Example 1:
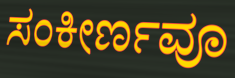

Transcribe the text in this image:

ಸಂಕೀರ್ಣವೂ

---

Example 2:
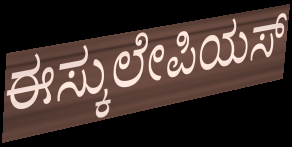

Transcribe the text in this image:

ಈಸ್ಕುಲೇಪಿಯಸ್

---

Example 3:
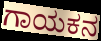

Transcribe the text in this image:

ಗಾಯಕನ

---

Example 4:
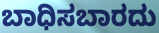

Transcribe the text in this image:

ಬಾಧಿಸಬಾರದು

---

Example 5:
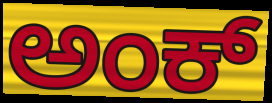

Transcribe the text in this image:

ಅಂಕ್